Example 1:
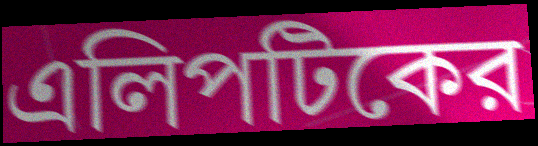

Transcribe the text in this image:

এলিপটিকের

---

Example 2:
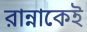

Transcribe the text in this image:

রান্নাকেই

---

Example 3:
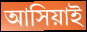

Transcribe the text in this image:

আসিয়াই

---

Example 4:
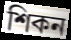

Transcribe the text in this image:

শিকন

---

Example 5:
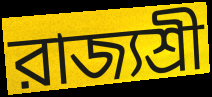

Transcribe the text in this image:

রাজ্যশ্রী